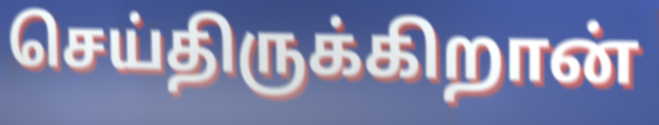
செய்திருக்கிறான்